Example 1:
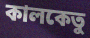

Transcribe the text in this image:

কালকেতু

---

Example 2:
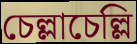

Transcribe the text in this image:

চেল্লাচেল্লি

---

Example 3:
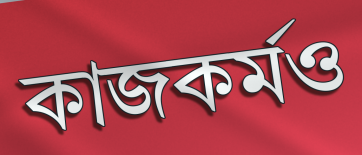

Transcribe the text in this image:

কাজকর্মও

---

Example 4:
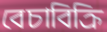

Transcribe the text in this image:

বেচাবিক্রি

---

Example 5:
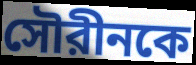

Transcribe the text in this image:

সৌরীনকে